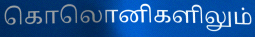
கொலொனிகளிலும்